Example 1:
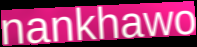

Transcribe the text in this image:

nankhawo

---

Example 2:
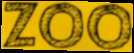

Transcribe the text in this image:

ZOO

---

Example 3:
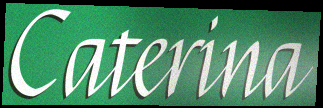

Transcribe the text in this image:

Caterina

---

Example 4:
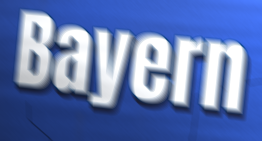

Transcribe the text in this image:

Bayern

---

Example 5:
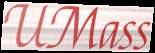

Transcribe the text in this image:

UMass